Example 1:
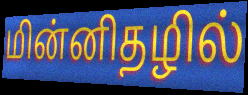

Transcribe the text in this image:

மின்னிதழில்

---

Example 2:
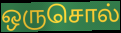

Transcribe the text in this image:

ஒருசொல்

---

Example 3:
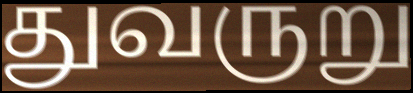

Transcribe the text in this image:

துவருறு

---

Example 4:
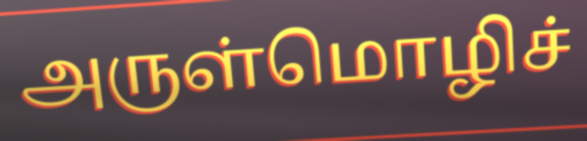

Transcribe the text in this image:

அருள்மொழிச்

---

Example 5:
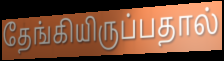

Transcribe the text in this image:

தேங்கியிருப்பதால்